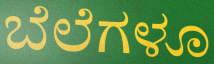
ಬೆಲೆಗಳೂ